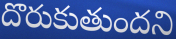
దొరుకుతుందని